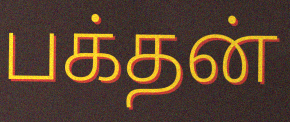
பக்தன்